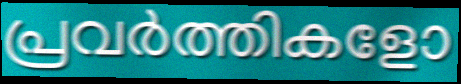
പ്രവർത്തികളോ